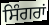
ਸਿੰਗਰਾਂ